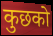
कुछको